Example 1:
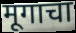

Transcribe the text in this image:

मूगाचा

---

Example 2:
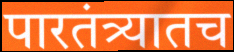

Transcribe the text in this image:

पारतंत्र्यातच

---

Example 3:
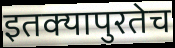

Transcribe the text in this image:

इतक्यापुरतेच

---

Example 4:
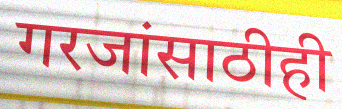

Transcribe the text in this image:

गरजांसाठीही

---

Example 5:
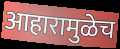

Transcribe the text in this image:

आहारामुळेच